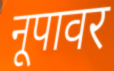
नूपावर